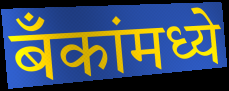
बँकांमध्ये